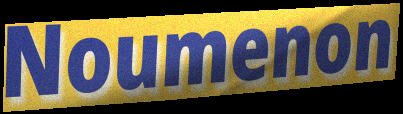
Noumenon